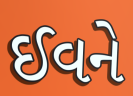
ઈવને